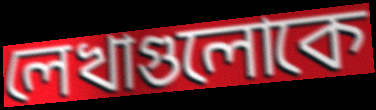
লেখাগুলোকে